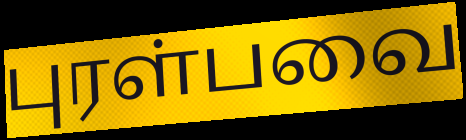
புரள்பவை